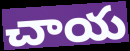
చాయ